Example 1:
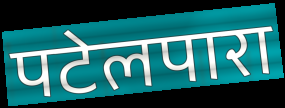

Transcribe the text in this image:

पटेलपारा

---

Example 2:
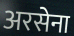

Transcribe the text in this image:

अरसेना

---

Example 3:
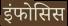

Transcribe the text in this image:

इंफोसिस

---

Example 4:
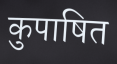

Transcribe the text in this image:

कुपाषित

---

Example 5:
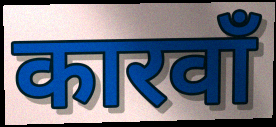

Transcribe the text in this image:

कारवाँ